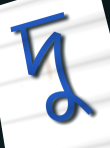
দু